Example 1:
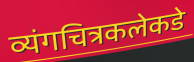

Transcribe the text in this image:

व्यंगचित्रकलेकडे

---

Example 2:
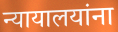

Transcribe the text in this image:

न्यायालयांना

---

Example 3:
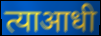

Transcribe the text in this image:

त्याआधी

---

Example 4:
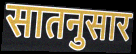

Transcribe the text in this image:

सातनुसार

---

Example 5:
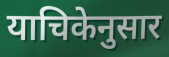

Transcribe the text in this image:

याचिकेनुसार